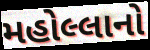
મહોલ્લાનો